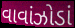
વાવાંઝોડાં